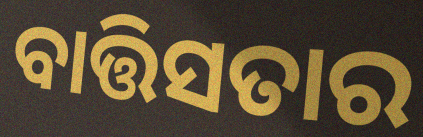
ବାତ୍ତିସତାର